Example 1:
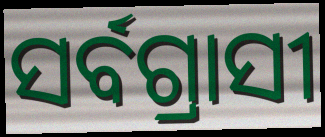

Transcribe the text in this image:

ସର୍ବଗ୍ରାସୀ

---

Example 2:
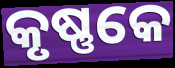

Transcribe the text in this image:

କୃଷ୍ଣକେ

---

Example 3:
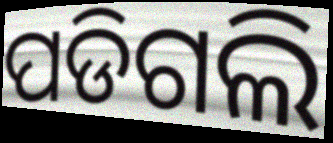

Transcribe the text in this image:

ପଡିଗଲି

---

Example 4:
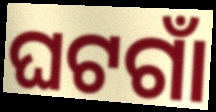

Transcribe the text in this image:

ଘଟଗାଁ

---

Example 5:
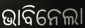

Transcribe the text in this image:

ଭାବିନେଲା